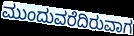
ಮುಂದುವರೆದಿರುವಾಗ